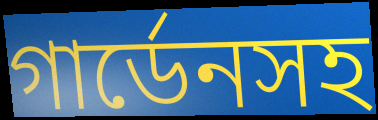
গার্ডেনসহ